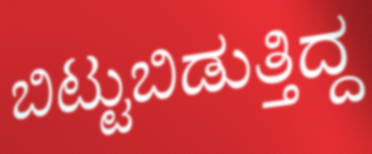
ಬಿಟ್ಟುಬಿಡುತ್ತಿದ್ದ